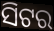
ସିଟର